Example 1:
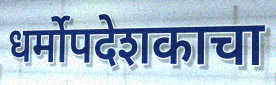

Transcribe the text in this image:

धर्मोपदेशकाचा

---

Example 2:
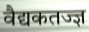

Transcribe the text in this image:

वैद्यकतज्ज्ञ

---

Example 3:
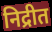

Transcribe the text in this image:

निद्रीत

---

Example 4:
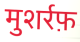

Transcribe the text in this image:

मुशर्रफ़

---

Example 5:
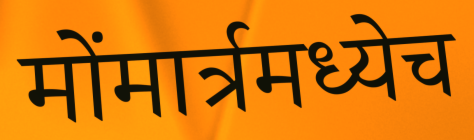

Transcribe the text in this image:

मोंमार्त्रमध्येच